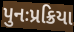
પુનઃપ્રક્રિયા